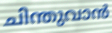
ചിന്തുവാൻ